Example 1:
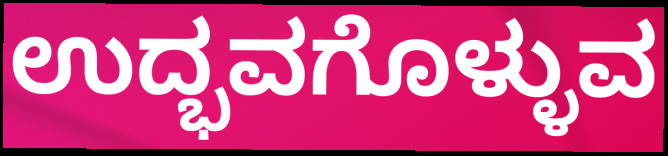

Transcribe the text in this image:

ಉದ್ಭವಗೊಳ್ಳುವ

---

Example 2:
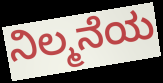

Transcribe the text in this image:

ನಿಲ್ಮನೆಯ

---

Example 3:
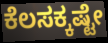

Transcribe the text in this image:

ಕೆಲಸಕ್ಕಷ್ಟೇ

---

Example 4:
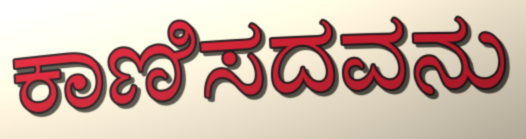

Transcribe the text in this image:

ಕಾಣಿಸದವನು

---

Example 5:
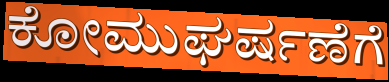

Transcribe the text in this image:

ಕೋಮುಘರ್ಷಣೆಗೆ